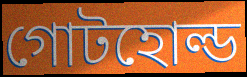
গোটহোল্ড